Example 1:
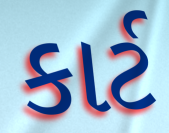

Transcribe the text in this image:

કાર્ટ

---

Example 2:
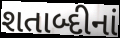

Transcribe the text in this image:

શતાબ્દીનાં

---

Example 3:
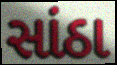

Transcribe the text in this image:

સાંઠા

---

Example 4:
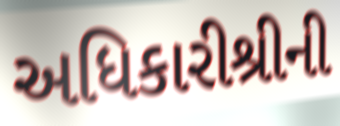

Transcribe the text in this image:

અધિકારીશ્રીની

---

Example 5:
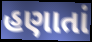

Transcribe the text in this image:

હણાતાં